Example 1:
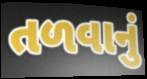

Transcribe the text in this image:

તળવાનું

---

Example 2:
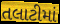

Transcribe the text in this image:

તલાટીમાં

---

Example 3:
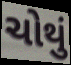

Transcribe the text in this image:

ચોથું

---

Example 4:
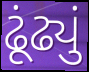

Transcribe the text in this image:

ઢૂંઢ્યું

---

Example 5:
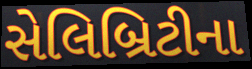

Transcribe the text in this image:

સેલિબ્રિટીના